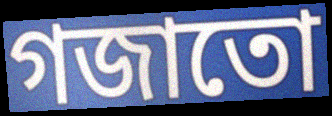
গজাতো